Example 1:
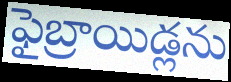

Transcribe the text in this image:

ఫైబ్రాయిడ్లను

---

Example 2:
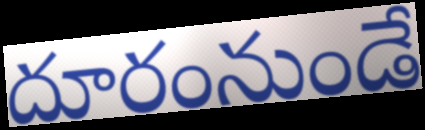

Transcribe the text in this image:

దూరంనుండే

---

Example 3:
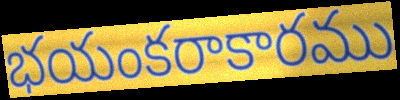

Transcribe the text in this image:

భయంకరాకారము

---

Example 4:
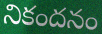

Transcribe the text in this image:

నికందనం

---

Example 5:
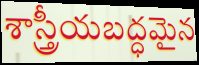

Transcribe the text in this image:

శాస్త్రీయబద్ధమైన